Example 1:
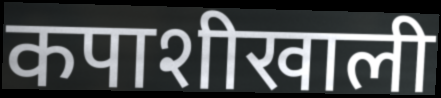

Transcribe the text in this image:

कपाशीखाली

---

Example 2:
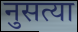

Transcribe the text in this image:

नुसत्या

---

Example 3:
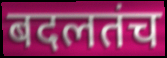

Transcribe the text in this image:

बदलतंच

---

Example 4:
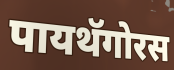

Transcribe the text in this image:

पायथॅगोरस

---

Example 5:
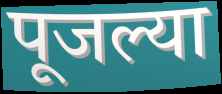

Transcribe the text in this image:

पूजल्या